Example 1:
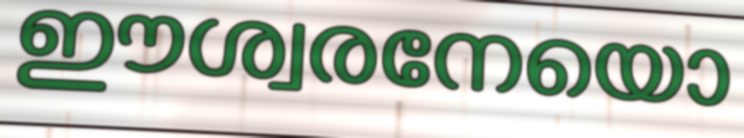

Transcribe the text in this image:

ഈശ്വരനേയൊ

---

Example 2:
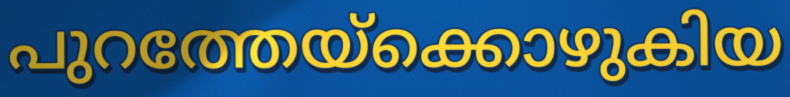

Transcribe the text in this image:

പുറത്തേയ്ക്കൊഴുകിയ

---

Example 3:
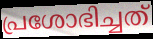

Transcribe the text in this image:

പ്രശോഭിച്ചത്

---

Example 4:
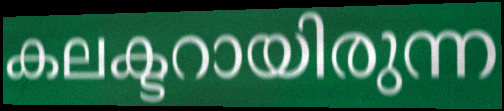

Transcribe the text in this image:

കലക്ടറായിരുന്ന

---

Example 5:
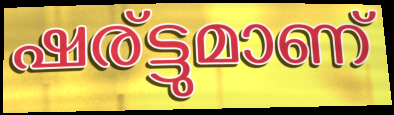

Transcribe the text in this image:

ഷര്ട്ടുമാണ്